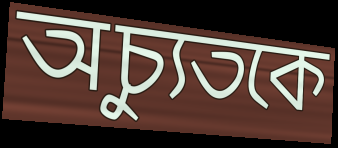
অচ্যুতকে